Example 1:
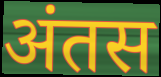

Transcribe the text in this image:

अंतस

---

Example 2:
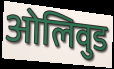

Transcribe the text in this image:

ओलिवुड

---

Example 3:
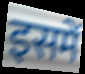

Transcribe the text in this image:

इसमें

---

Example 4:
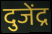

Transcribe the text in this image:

दुजेंद्र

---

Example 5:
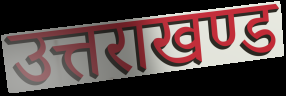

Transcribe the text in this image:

उत्तराखण्ड